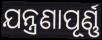
ଯନ୍ତ୍ରଣାପୂର୍ଣ୍ଣ